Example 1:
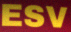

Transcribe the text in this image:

ESV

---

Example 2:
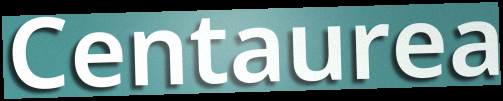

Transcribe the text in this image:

Centaurea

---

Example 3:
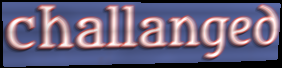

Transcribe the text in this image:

challanged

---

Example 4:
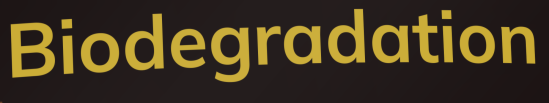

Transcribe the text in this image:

Biodegradation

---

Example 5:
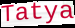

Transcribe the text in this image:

Tatya